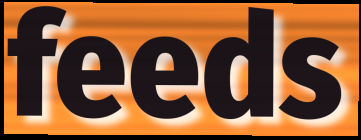
feeds